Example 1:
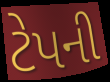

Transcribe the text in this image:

ટેપની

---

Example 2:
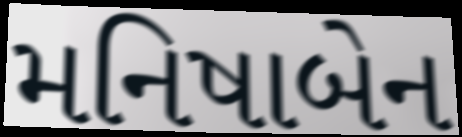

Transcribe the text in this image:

મનિષાબેન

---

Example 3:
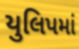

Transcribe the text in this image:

યુલિપમાં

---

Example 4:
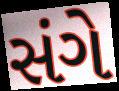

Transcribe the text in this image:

સંગે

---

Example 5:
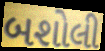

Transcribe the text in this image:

બશોલી